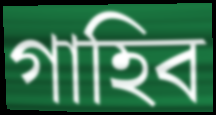
গাহিব